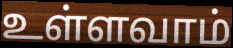
உள்ளவாம்